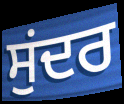
ਸੁਂਦਰ